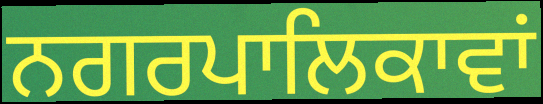
ਨਗਰਪਾਲਿਕਾਵਾਂ